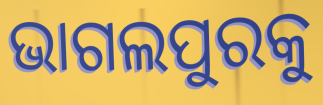
ଭାଗଲପୁରକୁ